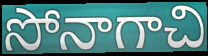
సోనాగాచి